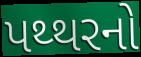
પથ્થરનો